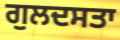
ਗੁਲਦਸਤਾ